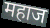
महाज